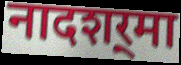
नादशर्मा